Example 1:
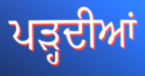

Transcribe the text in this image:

ਪੜ੍ਹਦੀਆਂ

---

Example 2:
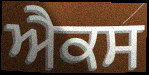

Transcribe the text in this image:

ਐਕਸ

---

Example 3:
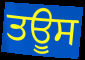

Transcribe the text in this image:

ਤਊਸ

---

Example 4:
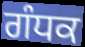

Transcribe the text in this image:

ਗੰਧਕ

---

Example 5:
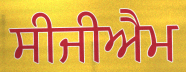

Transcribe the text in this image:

ਸੀਜੀਐਮ